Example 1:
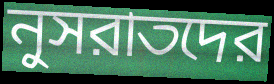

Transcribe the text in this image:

নুসরাতদের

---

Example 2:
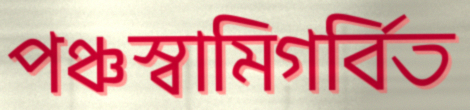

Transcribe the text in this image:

পঞ্চস্বামিগর্বিত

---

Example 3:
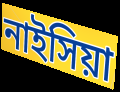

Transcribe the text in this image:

নাইসিয়া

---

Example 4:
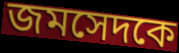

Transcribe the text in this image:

জমসেদকে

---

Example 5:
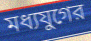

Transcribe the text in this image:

মধ্যযুগের